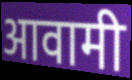
आवामी